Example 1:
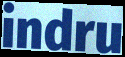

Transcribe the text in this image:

indru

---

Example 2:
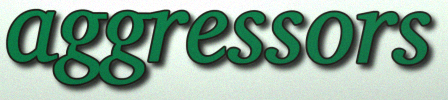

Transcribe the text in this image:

aggressors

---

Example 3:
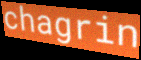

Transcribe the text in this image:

chagrin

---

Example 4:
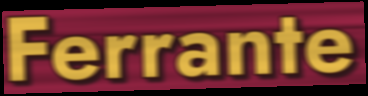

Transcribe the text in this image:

Ferrante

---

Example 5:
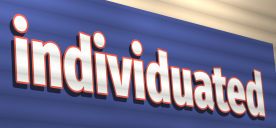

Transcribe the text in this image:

individuated